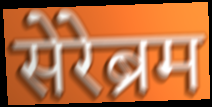
सेरेब्रम